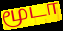
மூடா